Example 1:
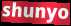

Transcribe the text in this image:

shunyo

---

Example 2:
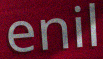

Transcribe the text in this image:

enil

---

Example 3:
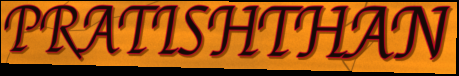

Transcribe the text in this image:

PRATISHTHAN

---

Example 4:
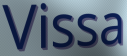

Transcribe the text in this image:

Vissa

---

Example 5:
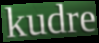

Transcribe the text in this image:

kudre